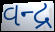
વન્દ્ર